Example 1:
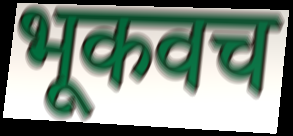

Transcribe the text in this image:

भूकवच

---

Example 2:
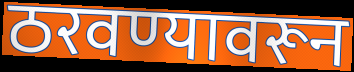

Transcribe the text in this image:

ठरवण्यावरून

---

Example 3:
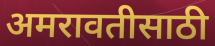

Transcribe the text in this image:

अमरावतीसाठी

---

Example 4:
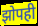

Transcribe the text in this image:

झोपही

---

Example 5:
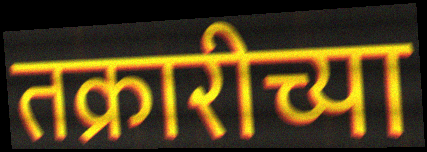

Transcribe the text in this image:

तक्रारीच्या